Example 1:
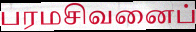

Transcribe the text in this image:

பரமசிவனைப்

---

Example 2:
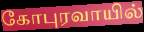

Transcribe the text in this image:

கோபுரவாயில்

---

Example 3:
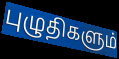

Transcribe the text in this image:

புழுதிகளும்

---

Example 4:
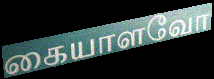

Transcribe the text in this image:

கையாளவோ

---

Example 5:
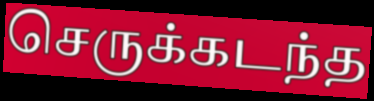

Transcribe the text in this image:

செருக்கடந்த